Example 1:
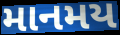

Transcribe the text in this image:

માનમય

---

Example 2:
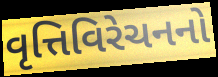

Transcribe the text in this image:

વૃત્તિવિરેચનનો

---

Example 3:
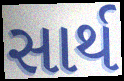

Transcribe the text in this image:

સાર્થ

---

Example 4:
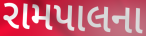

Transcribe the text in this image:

રામપાલના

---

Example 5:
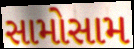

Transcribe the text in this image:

સામોસામ